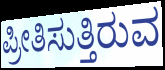
ಪ್ರೀತಿಸುತ್ತಿರುವ